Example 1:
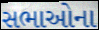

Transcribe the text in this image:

સભાઓના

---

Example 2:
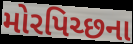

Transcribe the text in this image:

મોરપિચ્છના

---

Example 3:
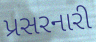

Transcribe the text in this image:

પ્રસરનારી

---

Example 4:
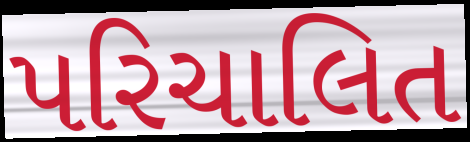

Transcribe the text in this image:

પરિચાલિત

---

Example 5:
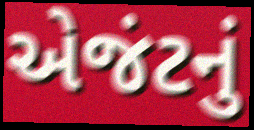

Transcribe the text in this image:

એજંટનું